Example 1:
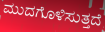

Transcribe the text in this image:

ಮುದಗೊಳಿಸುತ್ತದೆ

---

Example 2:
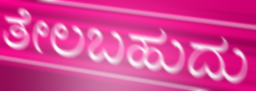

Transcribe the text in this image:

ತೇಲಬಹುದು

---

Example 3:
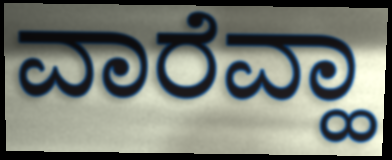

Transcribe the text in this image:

ವಾರೆವ್ಹಾ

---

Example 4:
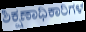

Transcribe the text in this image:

ಶಿಕ್ಷಣಾಧಿಕಾರಿಗಳ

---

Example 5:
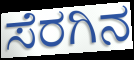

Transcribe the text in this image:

ಸೆರಗಿನ